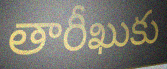
తారీఖుకు